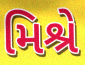
મિશ્રે